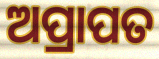
ଅପ୍ରାପତ